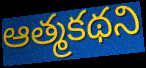
ఆత్మకథని